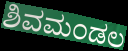
ಶಿವಮಂಡಲ